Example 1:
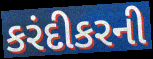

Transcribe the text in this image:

કરંદીકરની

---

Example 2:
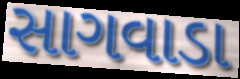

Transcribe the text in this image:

સાગવાડા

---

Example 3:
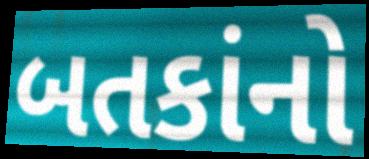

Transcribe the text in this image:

બતકાંનો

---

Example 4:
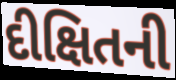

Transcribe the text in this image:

દીક્ષિતની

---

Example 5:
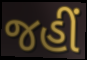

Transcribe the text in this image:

જહીં